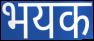
भयक